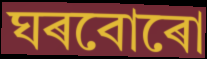
ঘৰবোৰো